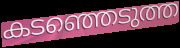
കടഞ്ഞെടുത്ത